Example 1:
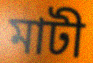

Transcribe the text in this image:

মাটী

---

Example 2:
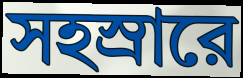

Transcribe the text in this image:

সহস্রারে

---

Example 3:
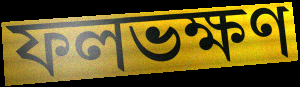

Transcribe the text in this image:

ফলভক্ষণ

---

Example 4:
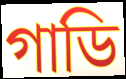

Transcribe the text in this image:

গাডি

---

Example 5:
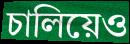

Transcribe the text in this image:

চালিয়েও